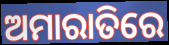
ଅମାରାତିରେ